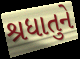
શ્રધાતુને